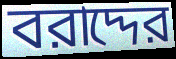
বরাদ্দের